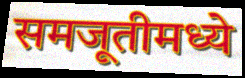
समजूतीमध्ये